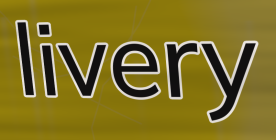
livery